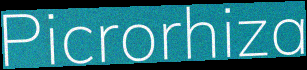
Picrorhiza